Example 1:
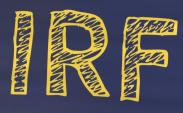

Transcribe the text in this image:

IRF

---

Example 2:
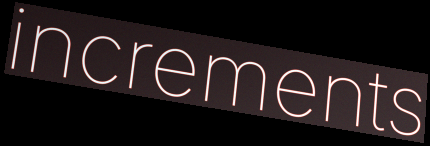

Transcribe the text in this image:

increments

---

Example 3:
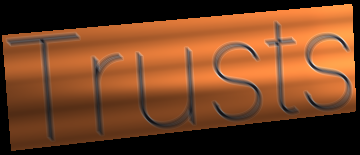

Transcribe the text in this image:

Trusts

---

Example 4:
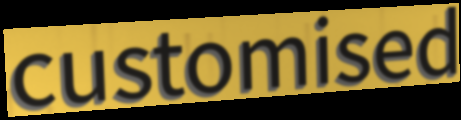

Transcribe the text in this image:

customised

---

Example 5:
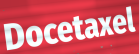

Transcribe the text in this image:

Docetaxel